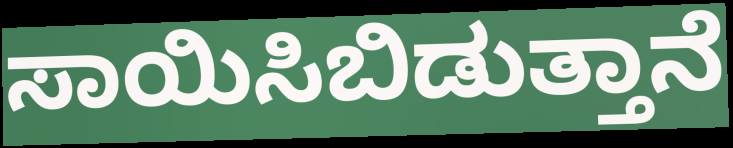
ಸಾಯಿಸಿಬಿಡುತ್ತಾನೆ